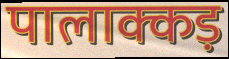
पालाक्कड़